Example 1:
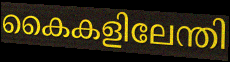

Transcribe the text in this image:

കൈകളിലേന്തി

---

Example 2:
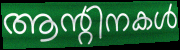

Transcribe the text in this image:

ആന്റിനകൾ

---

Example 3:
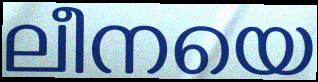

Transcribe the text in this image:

ലീനയെ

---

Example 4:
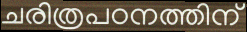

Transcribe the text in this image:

ചരിത്രപഠനത്തിന്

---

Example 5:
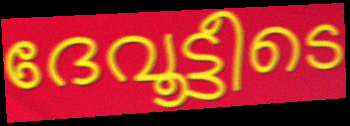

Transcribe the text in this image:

ദേവൂട്ടീടെ